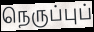
நெருப்புப்